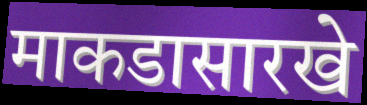
माकडासारखे